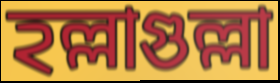
হল্লাগুল্লা